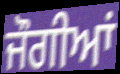
ਜੌਗੀਆਂ